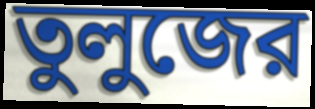
তুলুজের